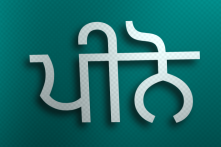
ਪੀਨੋ